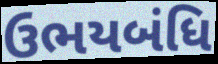
ઉભયબંધિ